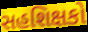
સહશિક્ષકો